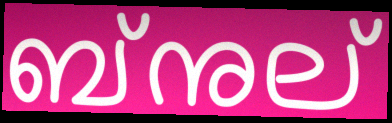
ബ്നുല്